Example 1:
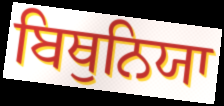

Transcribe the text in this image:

ਬਿਥੁਨਿਯਾ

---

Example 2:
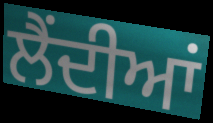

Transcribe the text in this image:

ਲੈਂਦੀਆਂ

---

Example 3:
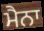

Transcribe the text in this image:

ਮੈਨਾ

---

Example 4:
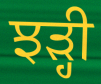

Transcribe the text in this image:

ਝੜ੍ਹੀ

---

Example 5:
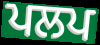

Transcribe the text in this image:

ਪਲਪ